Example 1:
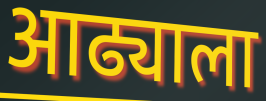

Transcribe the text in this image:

आढ्याला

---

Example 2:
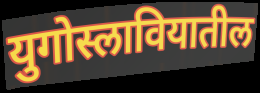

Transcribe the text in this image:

युगोस्लावियातील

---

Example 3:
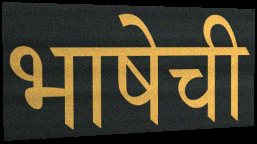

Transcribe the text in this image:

भाषेची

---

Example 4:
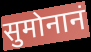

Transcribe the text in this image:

सुमोनानं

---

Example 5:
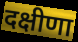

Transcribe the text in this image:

दक्षीणा